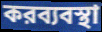
করব্যবস্থা